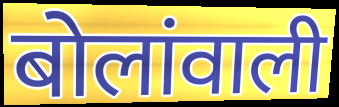
बोलांवाली